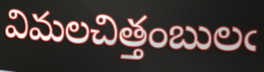
విమలచిత్తంబులఁ